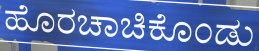
ಹೊರಚಾಚಿಕೊಂಡು